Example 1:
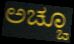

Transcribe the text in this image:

ಅಚ್ಚೂ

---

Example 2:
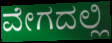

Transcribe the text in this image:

ವೇಗದಲ್ಲಿ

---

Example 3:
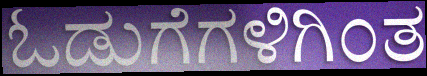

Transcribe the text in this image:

ಓಡುಗೆಗಳಿಗಿಂತ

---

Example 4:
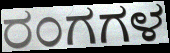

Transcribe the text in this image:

ರಂಗಗಳ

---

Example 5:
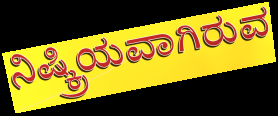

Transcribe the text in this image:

ನಿಷ್ಕ್ರಿಯವಾಗಿರುವ